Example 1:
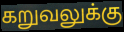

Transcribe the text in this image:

கறுவலுக்கு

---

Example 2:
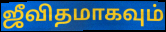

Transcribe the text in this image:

ஜீவிதமாகவும்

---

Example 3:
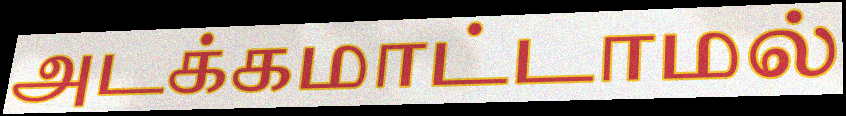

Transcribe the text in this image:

அடக்கமாட்டாமல்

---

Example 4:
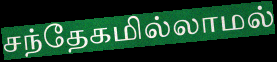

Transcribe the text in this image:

சந்தேகமில்லாமல்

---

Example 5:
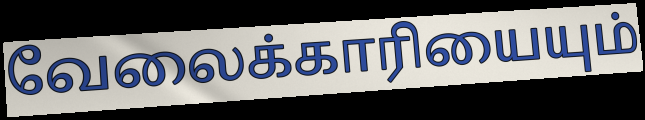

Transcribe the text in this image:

வேலைக்காரியையும்